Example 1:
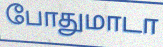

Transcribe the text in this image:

போதுமாடா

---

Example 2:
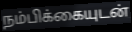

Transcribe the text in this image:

நம்பிக்கையுடன்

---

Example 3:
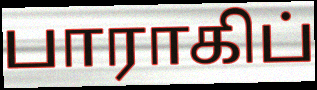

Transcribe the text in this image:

பாராகிப்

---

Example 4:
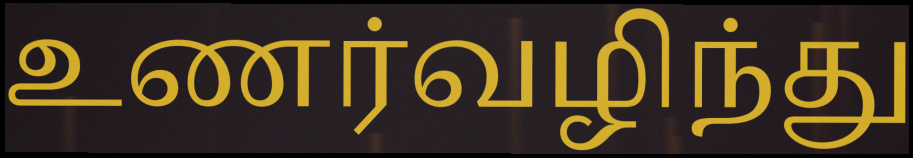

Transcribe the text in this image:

உணர்வழிந்து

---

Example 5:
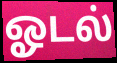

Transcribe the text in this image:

ஓடல்